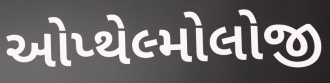
ઓપ્થેલ્મોલોજી